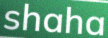
shaha